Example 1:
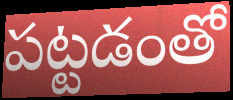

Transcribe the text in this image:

పట్టడంతో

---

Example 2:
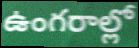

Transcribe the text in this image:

ఉంగరాల్లో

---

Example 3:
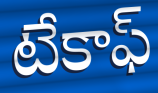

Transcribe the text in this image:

టేకాఫ్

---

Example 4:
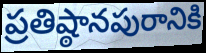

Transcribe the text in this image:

ప్రతిష్ఠానపురానికి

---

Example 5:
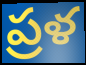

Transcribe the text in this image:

ప్రళ